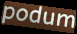
podum